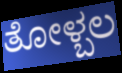
ತೋಳ್ಬಲ